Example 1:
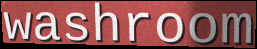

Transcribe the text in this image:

washroom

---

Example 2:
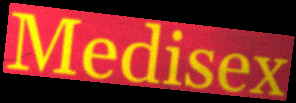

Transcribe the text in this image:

Medisex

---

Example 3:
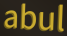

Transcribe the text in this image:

abul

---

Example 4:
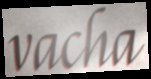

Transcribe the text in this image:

vacha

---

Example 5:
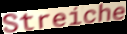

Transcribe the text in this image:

Streiche